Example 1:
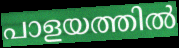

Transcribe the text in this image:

പാളയത്തിൽ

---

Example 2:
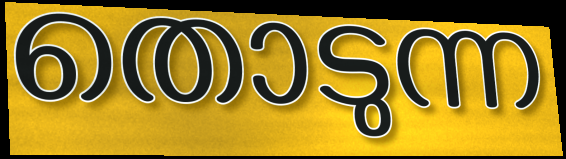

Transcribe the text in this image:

തൊടുന്ന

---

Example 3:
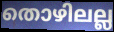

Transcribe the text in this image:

തൊഴിലല്ല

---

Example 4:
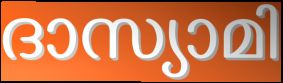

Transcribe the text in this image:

ദാസ്യാമി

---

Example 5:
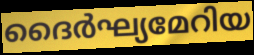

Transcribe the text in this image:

ദൈർഘ്യമേറിയ